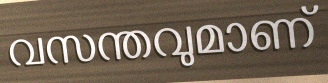
വസന്തവുമാണ്